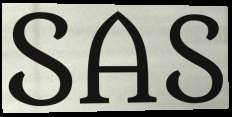
SAS